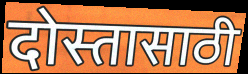
दोस्तासाठी